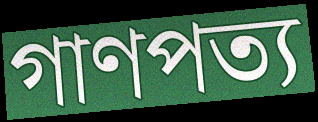
গাণপত্য